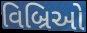
વિબ્રિઓ